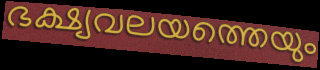
ഭക്ഷ്യവലയത്തെയും